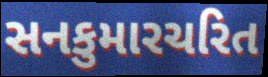
સનકુમારચરિત